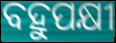
ବହୁପକ୍ଷୀ